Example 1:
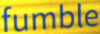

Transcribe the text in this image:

fumble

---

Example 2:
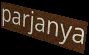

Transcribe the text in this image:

parjanya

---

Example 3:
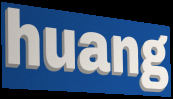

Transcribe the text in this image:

huang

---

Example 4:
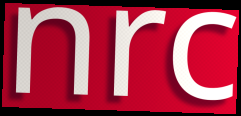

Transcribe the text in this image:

nrc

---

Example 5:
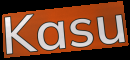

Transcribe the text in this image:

Kasu